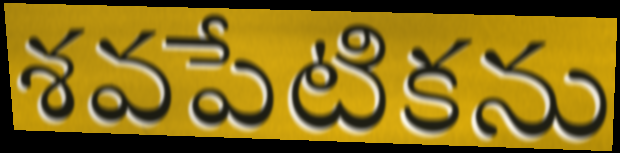
శవపేటికను